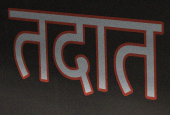
तदात